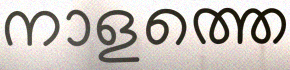
നാളത്തെ